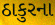
ઠાકુરના